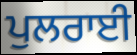
ਪੁਲਰਾਈ